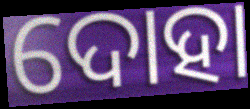
ଦୋହା